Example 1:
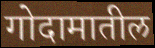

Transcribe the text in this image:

गोदामातील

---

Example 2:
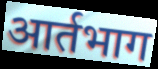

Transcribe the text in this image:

आर्तभाग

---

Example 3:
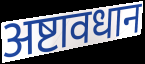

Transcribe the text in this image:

अष्टावधान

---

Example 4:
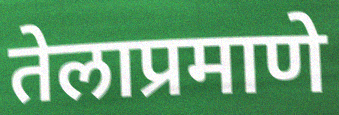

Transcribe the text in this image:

तेलाप्रमाणे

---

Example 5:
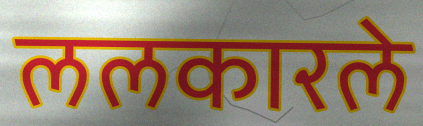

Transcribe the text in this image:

ललकारले